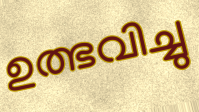
ഉത്ഭവിച്ചു